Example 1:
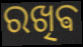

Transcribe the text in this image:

ରଖିଵ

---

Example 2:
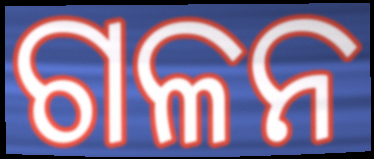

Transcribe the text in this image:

ଗଳନ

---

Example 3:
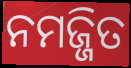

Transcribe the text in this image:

ନମଜ୍ଜିତ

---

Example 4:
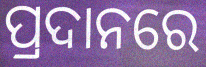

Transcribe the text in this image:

ପ୍ରଦାନରେ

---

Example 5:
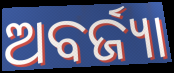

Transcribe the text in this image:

ଅବର୍ଜ୍ୟା